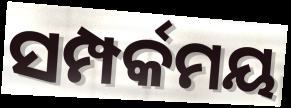
ସମ୍ପର୍କମୟ